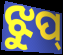
ଝୁପ୍